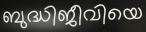
ബുദ്ധിജീവിയെ